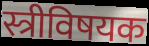
स्त्रीविषयक